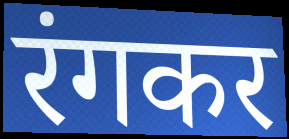
रंगकर